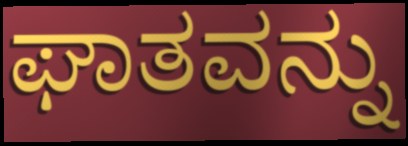
ಘಾತವನ್ನು